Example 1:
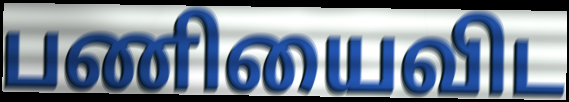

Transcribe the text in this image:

பணியைவிட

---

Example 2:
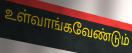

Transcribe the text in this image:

உள்வாங்கவேண்டும்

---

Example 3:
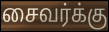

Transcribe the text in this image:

சைவர்க்கு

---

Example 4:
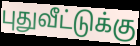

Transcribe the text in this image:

புதுவீட்டுக்கு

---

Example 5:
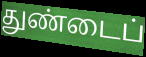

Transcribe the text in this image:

துண்டைப்